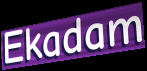
Ekadam